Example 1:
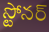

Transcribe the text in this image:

స్టోనర్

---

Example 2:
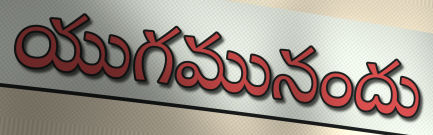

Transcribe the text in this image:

యుగమునందు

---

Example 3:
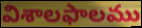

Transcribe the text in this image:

విశాలఫాలము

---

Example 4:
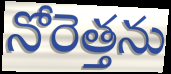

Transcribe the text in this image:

నోరెత్తను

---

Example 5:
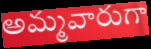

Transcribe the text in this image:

అమ్మవారుగా